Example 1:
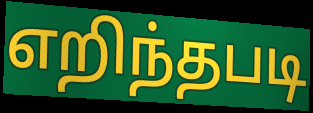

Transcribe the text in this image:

எறிந்தபடி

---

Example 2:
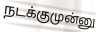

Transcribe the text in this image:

நடக்குமுன்னு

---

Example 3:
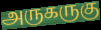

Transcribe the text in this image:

அருகருகு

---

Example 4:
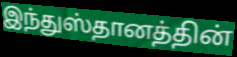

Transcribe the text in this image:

இந்துஸ்தானத்தின்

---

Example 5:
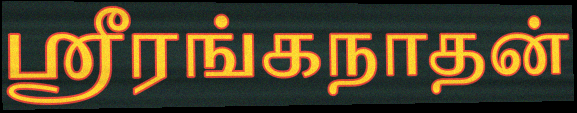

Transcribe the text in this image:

ஸ்ரீரங்கநாதன்